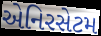
એનિરસેટમ